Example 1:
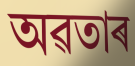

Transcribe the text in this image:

অৱতাৰ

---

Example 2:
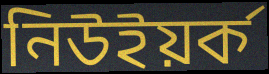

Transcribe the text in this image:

নিউইয়ৰ্ক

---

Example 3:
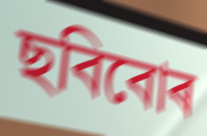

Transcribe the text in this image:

ছবিবোৰ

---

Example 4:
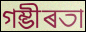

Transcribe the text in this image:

গম্ভীৰতা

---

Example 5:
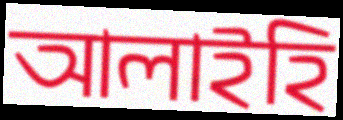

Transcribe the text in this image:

আলাইহি